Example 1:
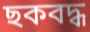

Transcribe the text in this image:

ছকবদ্ধ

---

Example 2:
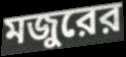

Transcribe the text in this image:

মজুরের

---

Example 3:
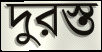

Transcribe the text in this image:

দুরস্ত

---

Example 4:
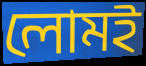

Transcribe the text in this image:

লোমই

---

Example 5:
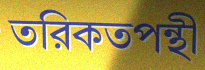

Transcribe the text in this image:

তরিকতপন্থী